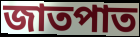
জাতপাত